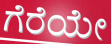
ಗೆರೆಯೇ